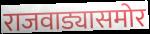
राजवाड्यासमोर